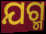
ଯଗ୍ମ